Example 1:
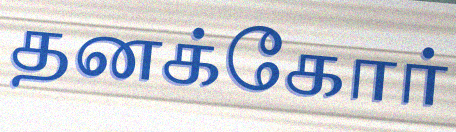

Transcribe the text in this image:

தனக்கோர்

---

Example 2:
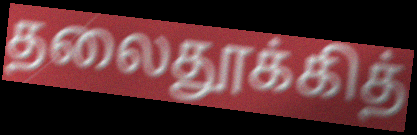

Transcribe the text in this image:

தலைதூக்கித்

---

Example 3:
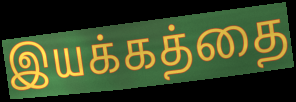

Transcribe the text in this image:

இயக்கத்தை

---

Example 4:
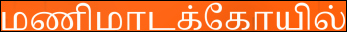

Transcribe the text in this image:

மணிமாடக்கோயில்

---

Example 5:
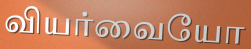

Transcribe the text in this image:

வியர்வையோ